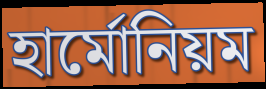
হার্মোনিয়ম